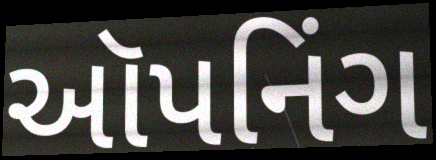
ઑપનિંગ